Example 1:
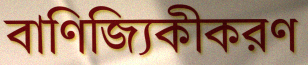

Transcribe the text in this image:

বাণিজ্যিকীকরণ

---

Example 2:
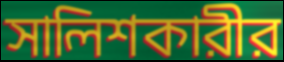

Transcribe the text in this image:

সালিশকারীর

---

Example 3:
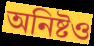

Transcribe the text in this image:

অনিষ্টও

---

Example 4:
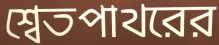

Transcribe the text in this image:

শ্বেতপাথরের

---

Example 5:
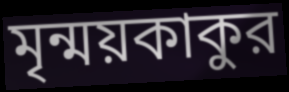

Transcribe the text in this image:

মৃন্ময়কাকুর